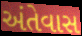
અંતેવાસ